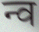
न्व